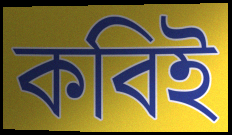
কবিই